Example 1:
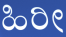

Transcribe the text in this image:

ಹಿರೀ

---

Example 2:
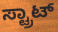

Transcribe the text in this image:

ಸ್ಟ್ರಾಟ್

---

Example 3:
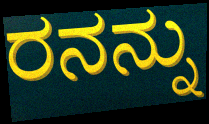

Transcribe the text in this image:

ರನನ್ನು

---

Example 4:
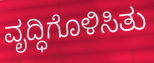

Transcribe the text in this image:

ವೃದ್ಧಿಗೊಳಿಸಿತು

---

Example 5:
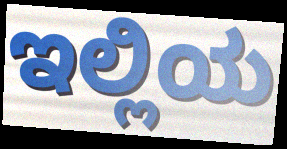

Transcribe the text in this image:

ಇಲ್ಲಿಯ